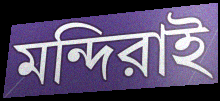
মন্দিরাই